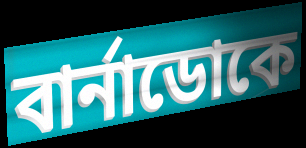
বার্নাডোকে